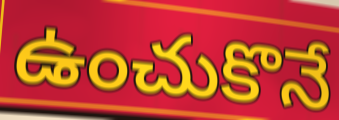
ఉంచుకొనే